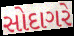
સોદાગરે